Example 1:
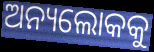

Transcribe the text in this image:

ଅନ୍ୟଲୋକକୁ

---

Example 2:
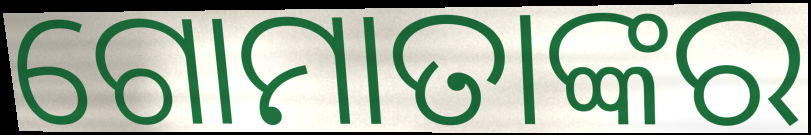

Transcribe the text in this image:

ଗୋମାତାଙ୍କର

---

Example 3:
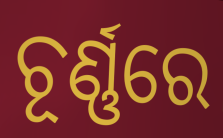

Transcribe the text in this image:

ଚୂର୍ଣ୍ଣରେ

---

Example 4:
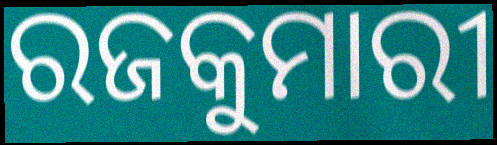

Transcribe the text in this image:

ରଜକୁମାରୀ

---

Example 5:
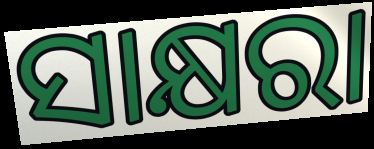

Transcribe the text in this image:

ସାକ୍ଷରା